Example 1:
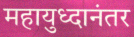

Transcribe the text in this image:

महायुध्दानंतर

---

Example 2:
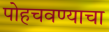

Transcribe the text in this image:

पोहचवण्याचा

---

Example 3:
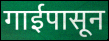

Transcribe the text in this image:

गाईपासून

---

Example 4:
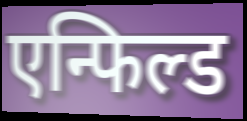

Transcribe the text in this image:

एन्फिल्ड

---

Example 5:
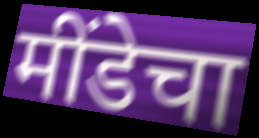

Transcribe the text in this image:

मींडेचा